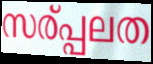
സര്പ്പലത